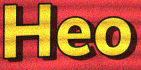
Heo